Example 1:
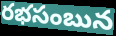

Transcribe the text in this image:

రభసంబున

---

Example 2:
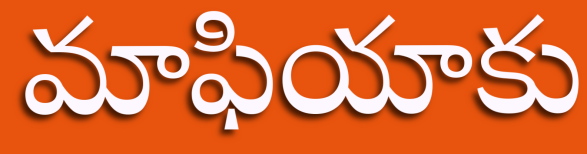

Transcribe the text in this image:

మాఫియాకు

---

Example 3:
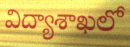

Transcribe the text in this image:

విద్యాశాఖలో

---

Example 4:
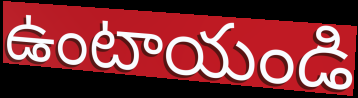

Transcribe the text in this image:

ఉంటాయండి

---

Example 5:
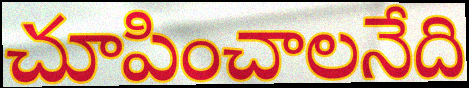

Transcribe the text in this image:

చూపించాలనేది